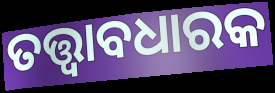
ତତ୍ତ୍ୱାବଧାରକ